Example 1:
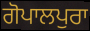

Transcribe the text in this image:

ਗੋਪਾਲਪੁਰਾ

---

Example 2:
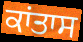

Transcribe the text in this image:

ਕਾਂਤਾਸ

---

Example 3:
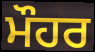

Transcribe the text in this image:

ਮੌਹਰ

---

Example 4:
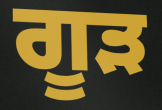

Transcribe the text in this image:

ਗੂੜ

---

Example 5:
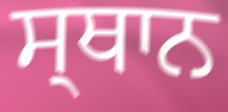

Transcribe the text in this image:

ਸ੍ਥਾਨ